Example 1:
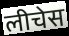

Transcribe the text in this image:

लीचेस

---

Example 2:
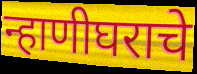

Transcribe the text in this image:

न्हाणीघराचे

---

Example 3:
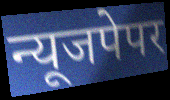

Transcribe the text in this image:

न्यूजपेपर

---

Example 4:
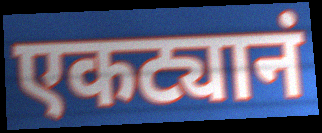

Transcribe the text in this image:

एकट्यानं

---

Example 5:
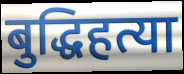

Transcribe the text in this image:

बुद्धिहत्या